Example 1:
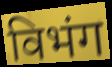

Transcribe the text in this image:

विभंग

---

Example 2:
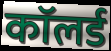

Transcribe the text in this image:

कॉलर्ड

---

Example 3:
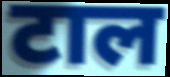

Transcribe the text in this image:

टाल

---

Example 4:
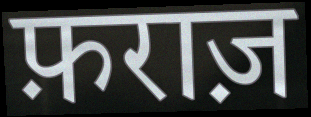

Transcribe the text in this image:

फ़राज़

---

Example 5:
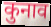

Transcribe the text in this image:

कुनाव